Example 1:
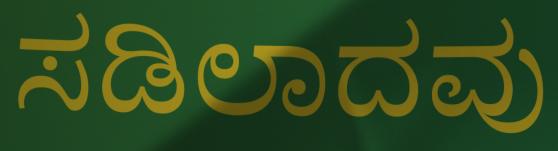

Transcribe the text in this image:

ಸಡಿಲಾದವು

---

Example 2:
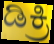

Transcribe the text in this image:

ಡಿಕ್ರಿ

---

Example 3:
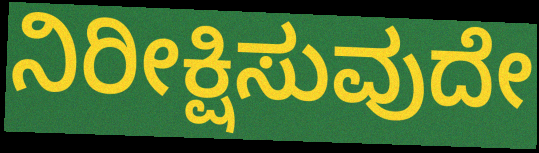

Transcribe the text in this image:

ನಿರೀಕ್ಷಿಸುವುದೇ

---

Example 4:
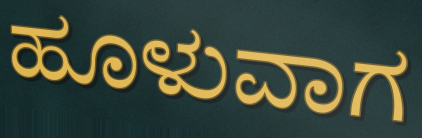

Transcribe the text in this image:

ಹೂಳುವಾಗ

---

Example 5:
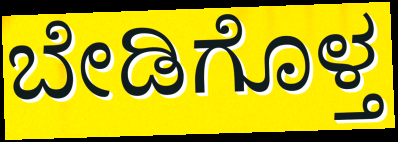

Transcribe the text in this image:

ಬೇಡಿಗೊಳ್ತ